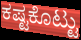
ಕಷ್ಟಕೊಟ್ಟು